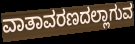
ವಾತಾವರಣದಲ್ಲಾಗುವ